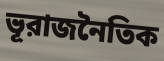
ভূরাজনৈতিক